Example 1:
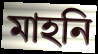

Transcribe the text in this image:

মাহনি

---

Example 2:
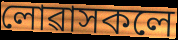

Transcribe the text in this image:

লোৱাসকলে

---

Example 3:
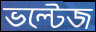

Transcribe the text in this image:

ভল্টেজ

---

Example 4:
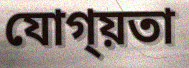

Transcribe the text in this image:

যোগ্য়তা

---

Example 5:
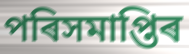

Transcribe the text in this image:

পৰিসমাপ্তিৰ